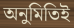
অনুমিতিই